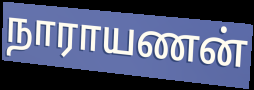
நாராயணன்